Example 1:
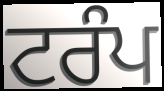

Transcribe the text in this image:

ਟਰੰਪ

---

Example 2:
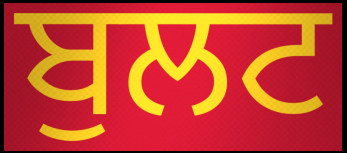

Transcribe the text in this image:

ਬੁਲਟ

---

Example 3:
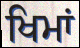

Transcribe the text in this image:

ਖਿਮਾਂ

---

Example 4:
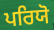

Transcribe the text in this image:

ਪਰਿਯੋ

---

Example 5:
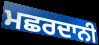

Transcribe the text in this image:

ਮਛਰਦਾਨੀ